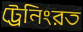
ট্রেনিংরত